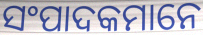
ସଂପାଦକମାନେ